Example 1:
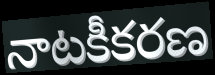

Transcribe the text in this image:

నాటకీకరణ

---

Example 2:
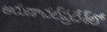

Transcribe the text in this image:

అరుణాచల్‌ప్రదేశ్‌లో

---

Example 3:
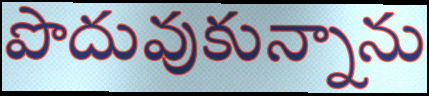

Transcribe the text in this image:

పొదువుకున్నాను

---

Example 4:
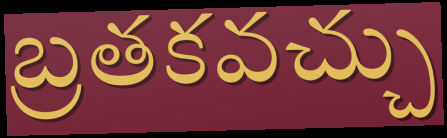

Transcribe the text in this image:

బ్రతకవచ్చు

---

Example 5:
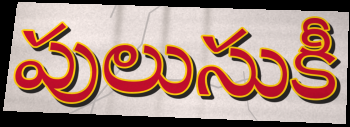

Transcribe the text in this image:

పులుసుకీ